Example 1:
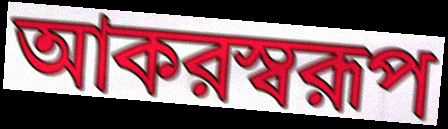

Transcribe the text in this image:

আকরস্বরূপ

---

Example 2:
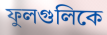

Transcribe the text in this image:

ফুলগুলিকে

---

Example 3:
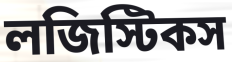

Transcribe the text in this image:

লজিস্টিকস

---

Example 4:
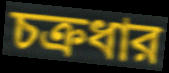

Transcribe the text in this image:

চক্রধার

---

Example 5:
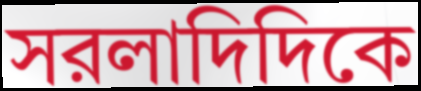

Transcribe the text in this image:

সরলাদিদিকে